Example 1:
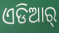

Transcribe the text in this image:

ଏଡିଆର୍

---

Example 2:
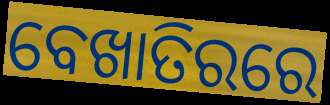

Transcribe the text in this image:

ବେଖାତିରରେ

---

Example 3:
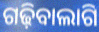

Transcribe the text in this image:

ଗଢ଼ିବାଲାଗି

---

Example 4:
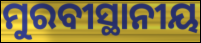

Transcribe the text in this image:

ମୁରବୀସ୍ଥାନୀୟ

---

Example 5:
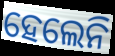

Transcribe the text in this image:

ହେଲେନି